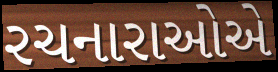
રચનારાઓએ